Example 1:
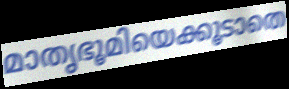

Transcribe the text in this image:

മാതൃഭൂമിയെക്കൂടാതെ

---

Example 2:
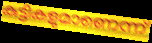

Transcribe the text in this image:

കുട്ടികളുമാണെന്ന്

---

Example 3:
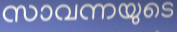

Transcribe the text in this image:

സാവന്നയുടെ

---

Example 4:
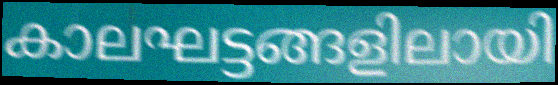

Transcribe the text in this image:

കാലഘട്ടങ്ങളിലായി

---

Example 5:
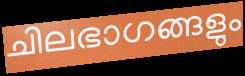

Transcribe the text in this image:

ചിലഭാഗങ്ങളും